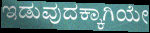
ಇಡುವುದಕ್ಕಾಗಿಯೇ